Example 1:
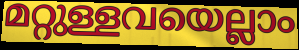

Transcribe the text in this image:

മറ്റുള്ളവയെല്ലാം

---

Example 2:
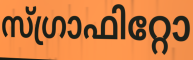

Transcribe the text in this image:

സ്ഗ്രാഫിറ്റോ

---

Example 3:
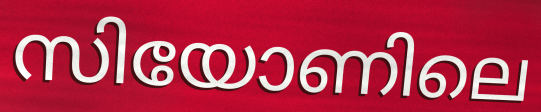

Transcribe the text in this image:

സിയോണിലെ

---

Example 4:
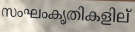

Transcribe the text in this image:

സംഘംകൃതികളില്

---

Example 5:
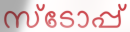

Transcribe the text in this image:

സ്ടോപ്പ്